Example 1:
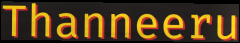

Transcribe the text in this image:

Thanneeru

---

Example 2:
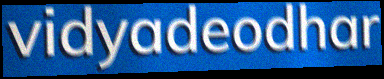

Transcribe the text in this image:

vidyadeodhar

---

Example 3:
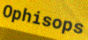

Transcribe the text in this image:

Ophisops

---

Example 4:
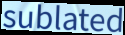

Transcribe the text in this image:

sublated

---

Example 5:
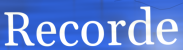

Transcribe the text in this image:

Recorde